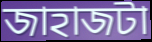
জাহাজটা